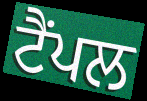
ਟੈਂਪਲ